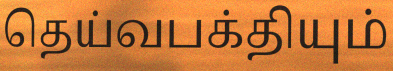
தெய்வபக்தியும்